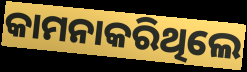
କାମନାକରିଥିଲେ